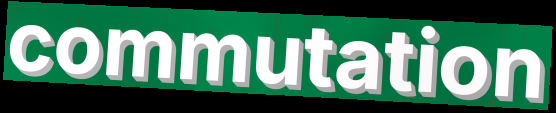
commutation